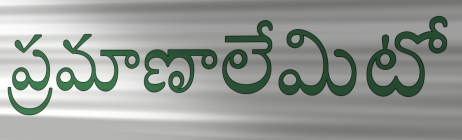
ప్రమాణాలేమిటో